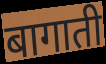
बागाती